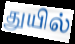
துயில்